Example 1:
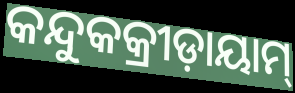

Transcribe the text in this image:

କନ୍ଦୁକକ୍ରୀଡ଼ାୟାମ୍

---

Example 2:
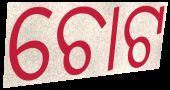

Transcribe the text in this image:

ଚୋଟ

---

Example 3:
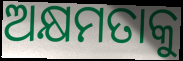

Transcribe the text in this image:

ଅକ୍ଷମତାକୁ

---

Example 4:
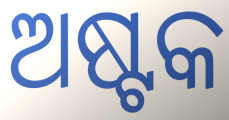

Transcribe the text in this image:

ଅଷ୍ଟକ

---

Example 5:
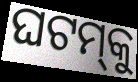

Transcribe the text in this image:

ଘଟମ୍‌କୁ